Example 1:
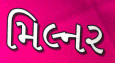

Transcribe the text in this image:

મિલ્નર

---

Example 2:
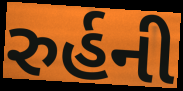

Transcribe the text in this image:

રુર્હની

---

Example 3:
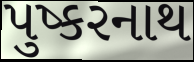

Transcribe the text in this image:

પુષ્કરનાથ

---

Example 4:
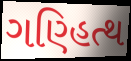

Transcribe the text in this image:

ગણ્હિત્થ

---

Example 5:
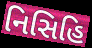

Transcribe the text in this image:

નિસિહિ